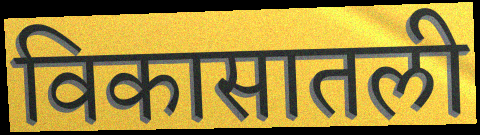
विकासातली